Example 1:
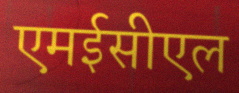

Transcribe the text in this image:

एमईसीएल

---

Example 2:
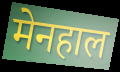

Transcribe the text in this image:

मेनहाल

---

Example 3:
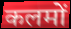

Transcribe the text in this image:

कलमों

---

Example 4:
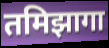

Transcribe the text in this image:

तमिझागा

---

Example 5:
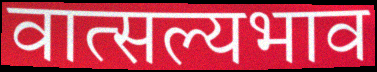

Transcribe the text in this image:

वात्सल्यभाव